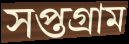
সপ্তগ্রাম